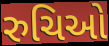
રુચિઓ